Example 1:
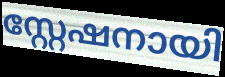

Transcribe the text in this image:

സ്റ്റേഷനായി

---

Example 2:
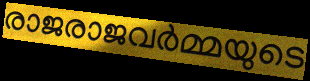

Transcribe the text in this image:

രാജരാജവർമ്മയുടെ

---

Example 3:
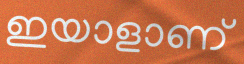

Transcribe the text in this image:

ഇയാളാണ്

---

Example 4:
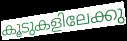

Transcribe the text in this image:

കൂടുകളിലേക്കു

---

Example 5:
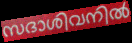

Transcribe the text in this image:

സദാശിവനിൽ